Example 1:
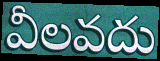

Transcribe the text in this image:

వీలవదు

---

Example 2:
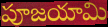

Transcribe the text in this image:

పూజయామి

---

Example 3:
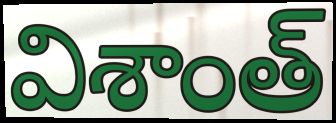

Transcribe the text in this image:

విశాంత్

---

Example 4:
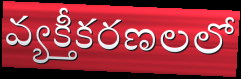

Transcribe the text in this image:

వ్యక్తీకరణలలో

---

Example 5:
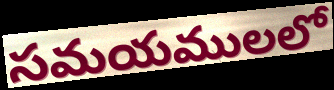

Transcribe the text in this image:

సమయములలో